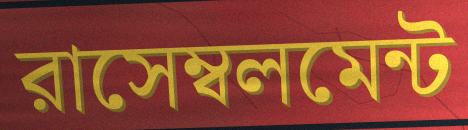
রাসেম্বলমেন্ট